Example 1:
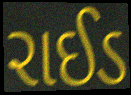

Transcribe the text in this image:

રાઈડ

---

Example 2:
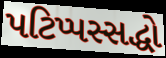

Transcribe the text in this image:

પટિપ્પસ્સદ્ધો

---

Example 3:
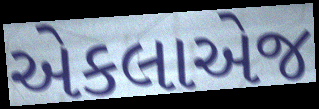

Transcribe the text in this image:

એકલાએજ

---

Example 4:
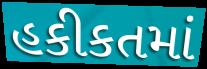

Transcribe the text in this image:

હકીકતમાં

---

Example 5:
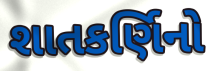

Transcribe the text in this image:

શાતકર્ણિનો